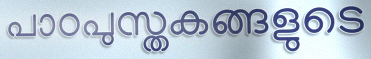
പാഠപുസ്തകങ്ങളുടെ